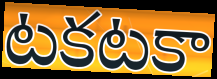
టకటకా